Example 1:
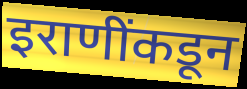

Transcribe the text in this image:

इराणींकडून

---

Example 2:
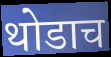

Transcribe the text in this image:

थोडाच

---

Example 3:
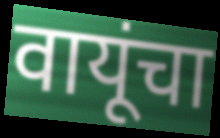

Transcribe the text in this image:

वायूंचा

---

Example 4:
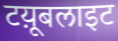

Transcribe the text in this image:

टय़ूबलाइट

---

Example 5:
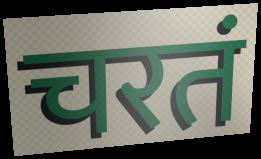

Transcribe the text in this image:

चरतं